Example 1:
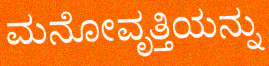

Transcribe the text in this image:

ಮನೋವೃತ್ತಿಯನ್ನು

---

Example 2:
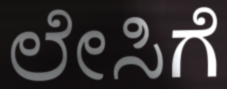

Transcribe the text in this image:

ಲೇಸಿಗೆ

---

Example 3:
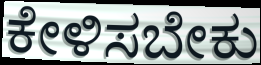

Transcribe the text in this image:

ಕೇಳಿಸಬೇಕು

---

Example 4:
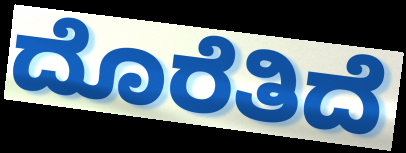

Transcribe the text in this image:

ದೊರೆತಿದೆ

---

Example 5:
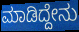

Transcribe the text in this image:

ಮಾಡಿದ್ದೇನು